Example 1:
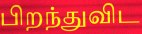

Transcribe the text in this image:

பிறந்துவிட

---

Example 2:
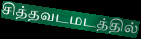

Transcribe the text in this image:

சித்தவடமடத்தில்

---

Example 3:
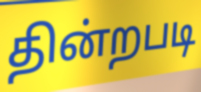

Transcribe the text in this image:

தின்றபடி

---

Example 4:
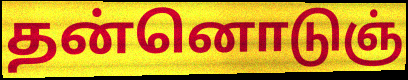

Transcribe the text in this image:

தன்னொடுஞ்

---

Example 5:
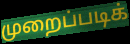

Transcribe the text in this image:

முறைப்படிக்